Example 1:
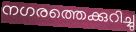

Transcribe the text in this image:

നഗരത്തെക്കുറിച്ചു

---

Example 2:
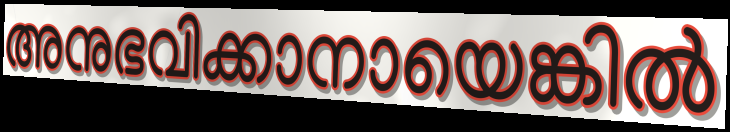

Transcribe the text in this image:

അനുഭവിക്കാനായെങ്കിൽ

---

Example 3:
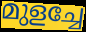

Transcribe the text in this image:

മുളച്ചേ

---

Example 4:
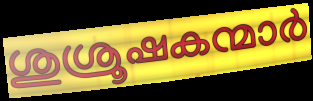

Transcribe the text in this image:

ശുശ്രൂഷകന്മാർ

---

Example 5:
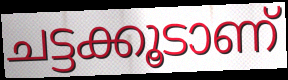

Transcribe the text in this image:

ചട്ടക്കൂടാണ്